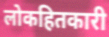
लोकहितकारी